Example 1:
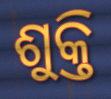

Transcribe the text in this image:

ଶୁକ୍ତି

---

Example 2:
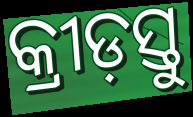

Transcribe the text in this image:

କ୍ରୀଡ଼ସ୍ତୁ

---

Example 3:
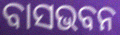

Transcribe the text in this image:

ବାସଭବନ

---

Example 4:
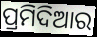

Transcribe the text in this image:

ପ୍ରମିଦିଆର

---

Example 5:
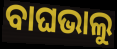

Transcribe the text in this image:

ବାଘଭାଲୁ